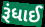
રૂંધાઈ